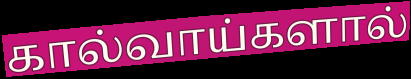
கால்வாய்களால்